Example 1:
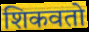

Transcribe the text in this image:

शिकवतो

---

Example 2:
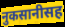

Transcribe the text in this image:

नुकसानीसह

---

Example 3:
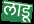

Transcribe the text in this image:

लाडू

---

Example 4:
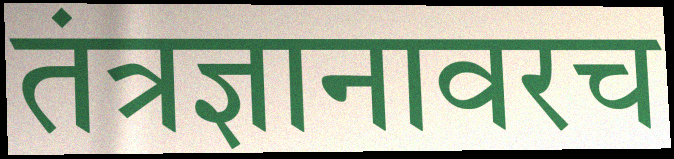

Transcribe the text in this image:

तंत्रज्ञानावरच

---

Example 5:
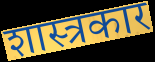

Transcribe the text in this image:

शास्त्रकार